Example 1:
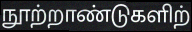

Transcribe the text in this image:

நூற்றாண்டுகளிற்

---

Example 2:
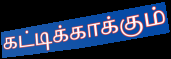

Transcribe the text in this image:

கட்டிக்காக்கும்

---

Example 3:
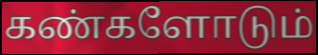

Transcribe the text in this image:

கண்களோடும்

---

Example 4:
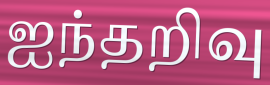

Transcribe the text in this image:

ஐந்தறிவு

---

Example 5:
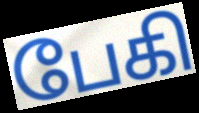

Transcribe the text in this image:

பேகி